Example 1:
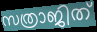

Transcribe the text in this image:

സത്രാജിത്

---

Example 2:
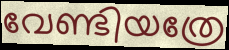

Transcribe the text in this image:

വേണ്ടിയത്രേ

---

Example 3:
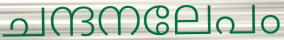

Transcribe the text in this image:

ചന്ദനലേപം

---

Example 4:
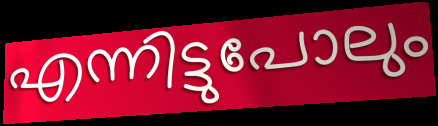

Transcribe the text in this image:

എന്നിട്ടുപോലും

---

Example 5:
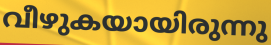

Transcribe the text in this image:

വീഴുകയായിരുന്നു